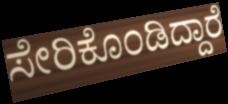
ಸೇರಿಕೊಂಡಿದ್ದಾರೆ